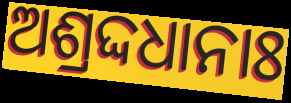
ଅଶ୍ରଦ୍ଦଧାନାଃ